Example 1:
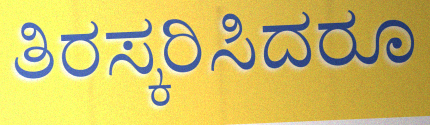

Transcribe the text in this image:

ತಿರಸ್ಕರಿಸಿದರೂ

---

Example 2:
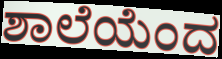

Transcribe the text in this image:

ಶಾಲೆಯೆಂದ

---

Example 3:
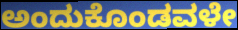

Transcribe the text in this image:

ಅಂದುಕೊಂಡವಳೇ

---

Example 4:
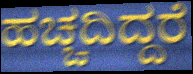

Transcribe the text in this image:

ಹಚ್ಚದಿದ್ದರೆ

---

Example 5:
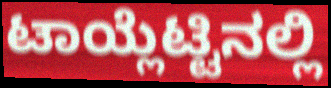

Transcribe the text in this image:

ಟಾಯ್ಲೆಟ್ಟಿನಲ್ಲಿ